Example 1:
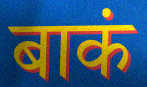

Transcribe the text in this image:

बाकं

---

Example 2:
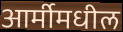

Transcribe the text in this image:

आर्मीमधील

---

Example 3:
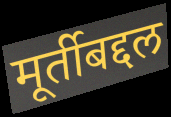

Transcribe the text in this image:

मूर्तीबद्दल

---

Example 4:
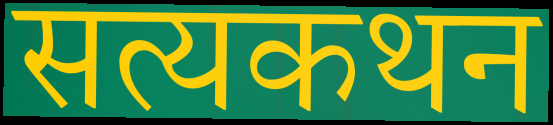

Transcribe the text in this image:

सत्यकथन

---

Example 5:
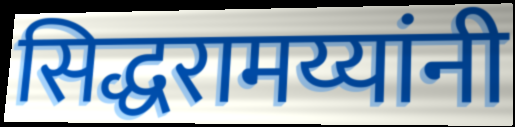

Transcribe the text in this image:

सिद्धरामय्यांनी